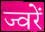
ज्वरें